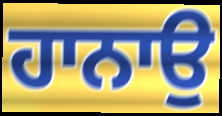
ਹਾਨਾਉ